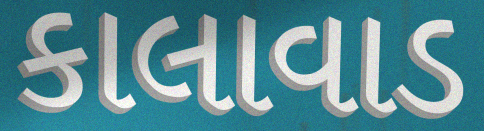
કાલાવાડ